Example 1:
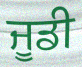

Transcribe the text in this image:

ਜੂਡੀ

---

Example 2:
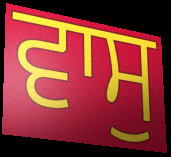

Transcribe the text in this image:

ਵਾਸੁ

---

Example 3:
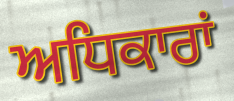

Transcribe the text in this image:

ਅਧਿਕਾਰਾਂ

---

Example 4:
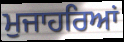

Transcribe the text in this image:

ਮੁਜਾਹਰਿਆਂ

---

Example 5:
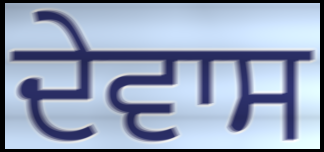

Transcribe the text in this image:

ਦੇਵਾਸ